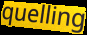
quelling